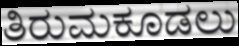
ತಿರುಮಕೂಡಲು